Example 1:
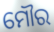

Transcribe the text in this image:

ମୌର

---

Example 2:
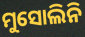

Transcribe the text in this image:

ମୁସୋଲିନି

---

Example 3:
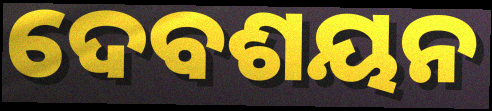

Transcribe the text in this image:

ଦେବଶୟନ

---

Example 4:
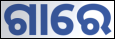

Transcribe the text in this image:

ଗାରେ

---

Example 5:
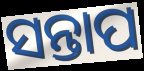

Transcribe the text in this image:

ସନ୍ତାପ